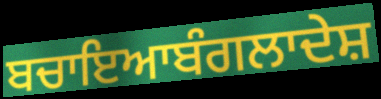
ਬਚਾਇਆਬੰਗਲਾਦੇਸ਼